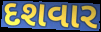
દશવાર